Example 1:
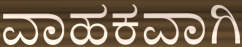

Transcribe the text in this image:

ವಾಹಕವಾಗಿ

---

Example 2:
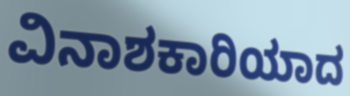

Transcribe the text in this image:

ವಿನಾಶಕಾರಿಯಾದ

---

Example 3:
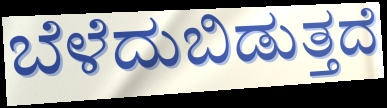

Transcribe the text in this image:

ಬೆಳೆದುಬಿಡುತ್ತದೆ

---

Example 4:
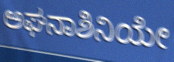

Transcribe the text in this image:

ಅಘನಾಶಿನಿಯೇ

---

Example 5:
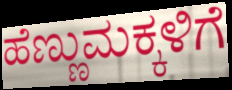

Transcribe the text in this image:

ಹೆಣ್ಣುಮಕ್ಕಳಿಗೆ